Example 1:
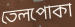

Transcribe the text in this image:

তেলপোকা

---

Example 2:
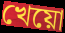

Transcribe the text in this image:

খেয়ো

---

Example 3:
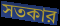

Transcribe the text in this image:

সতকার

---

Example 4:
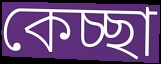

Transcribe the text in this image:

কেচ্ছা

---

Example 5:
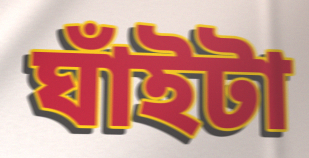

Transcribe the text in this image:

ঘাঁইটা